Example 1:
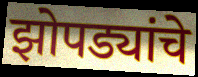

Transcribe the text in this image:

झोपड्यांचे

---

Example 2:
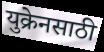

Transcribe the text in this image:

युक्रेनसाठी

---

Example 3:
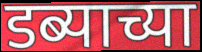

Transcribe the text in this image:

डब्याच्या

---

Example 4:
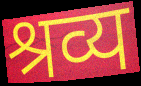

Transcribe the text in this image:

श्रव्य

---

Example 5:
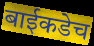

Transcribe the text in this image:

बाईकडेच